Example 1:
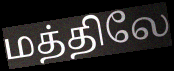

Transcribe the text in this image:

மத்திலே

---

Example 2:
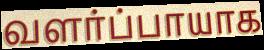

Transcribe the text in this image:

வளர்ப்பாயாக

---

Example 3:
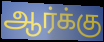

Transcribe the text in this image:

ஆர்க்கு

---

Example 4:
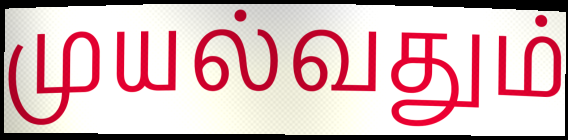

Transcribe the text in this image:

முயல்வதும்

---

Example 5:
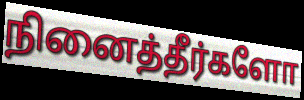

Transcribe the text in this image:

நினைத்தீர்களோ